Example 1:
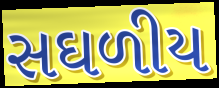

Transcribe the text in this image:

સઘળીય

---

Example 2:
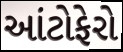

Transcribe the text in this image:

આંટોફેરો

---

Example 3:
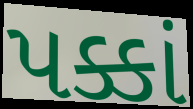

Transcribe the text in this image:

પક્કાં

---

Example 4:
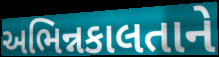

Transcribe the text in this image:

અભિન્નકાલતાને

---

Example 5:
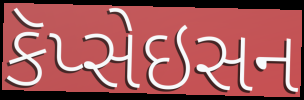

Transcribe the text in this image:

કૅપ્સેઇસન